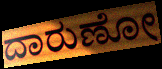
ದಾರುಣೋ